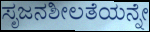
ಸೃಜನಶೀಲತೆಯನ್ನೇ